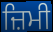
ਜ਼ਿਮੀ